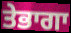
ਤੇਭਾਗਾ